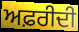
ਅਫ਼ਰੀਦੀ